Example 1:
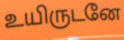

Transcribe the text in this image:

உயிருடனே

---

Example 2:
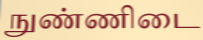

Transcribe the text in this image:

நுண்ணிடை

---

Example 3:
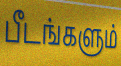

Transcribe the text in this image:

பீடங்களும்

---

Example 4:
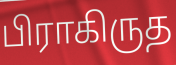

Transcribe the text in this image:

பிராகிருத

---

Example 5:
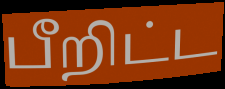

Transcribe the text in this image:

பீறிட்ட